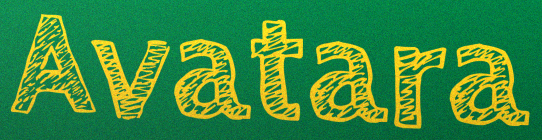
Avatara